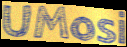
UMosi